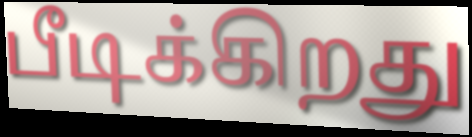
பீடிக்கிறது